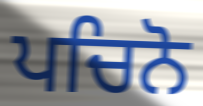
ਪਚਿਨੋ